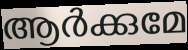
ആർക്കുമേ